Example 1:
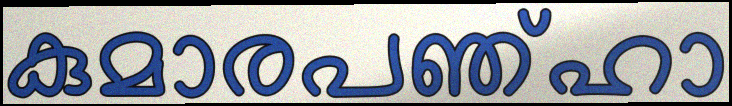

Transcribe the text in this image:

കുമാരപഞ്ഹാ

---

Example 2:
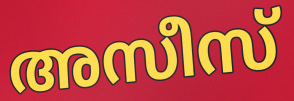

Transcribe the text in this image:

അസീസ്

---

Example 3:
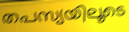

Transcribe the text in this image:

തപസ്യയിലൂടെ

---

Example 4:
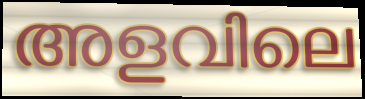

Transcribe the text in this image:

അളവിലെ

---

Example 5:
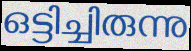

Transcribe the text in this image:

ഒട്ടിച്ചിരുന്നു